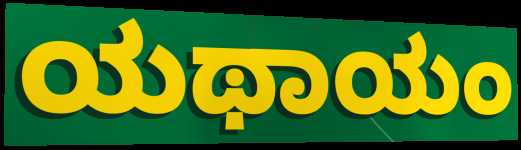
ಯಥಾಯಂ